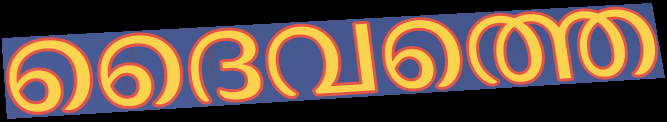
ദൈവത്തെ